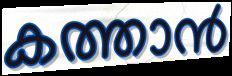
കത്താൻ